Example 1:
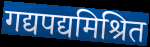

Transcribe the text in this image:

गद्यपद्यमिश्रित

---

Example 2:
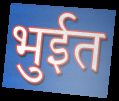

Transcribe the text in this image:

भुईत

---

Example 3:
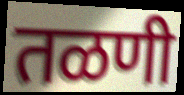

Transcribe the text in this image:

तळणी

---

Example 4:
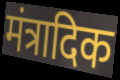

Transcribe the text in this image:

मंत्रादिक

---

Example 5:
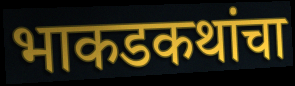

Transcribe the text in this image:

भाकडकथांचा